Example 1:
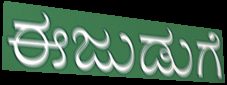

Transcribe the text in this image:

ಈಜುಡುಗೆ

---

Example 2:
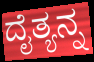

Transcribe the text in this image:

ದೈತ್ಯನ್ನ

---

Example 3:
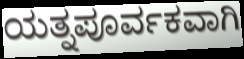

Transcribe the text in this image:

ಯತ್ನಪೂರ್ವಕವಾಗಿ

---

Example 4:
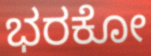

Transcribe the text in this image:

ಭರಕೋ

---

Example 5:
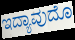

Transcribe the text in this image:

ಇದ್ಯಾವುದೊ